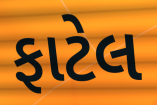
ફાટેલ